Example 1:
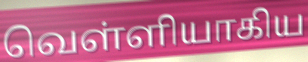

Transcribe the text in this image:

வெள்ளியாகிய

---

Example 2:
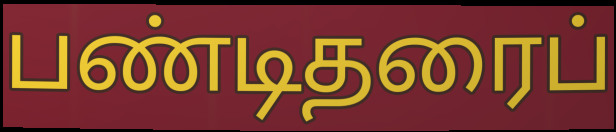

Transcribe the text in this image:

பண்டிதரைப்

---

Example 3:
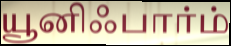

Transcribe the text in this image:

யூனிஃபார்ம்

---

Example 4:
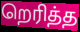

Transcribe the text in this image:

றெரித்த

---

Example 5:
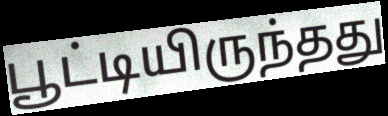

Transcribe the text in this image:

பூட்டியிருந்தது